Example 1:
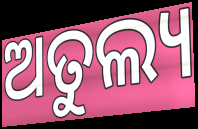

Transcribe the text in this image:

ଅତୁଲ୍ୟ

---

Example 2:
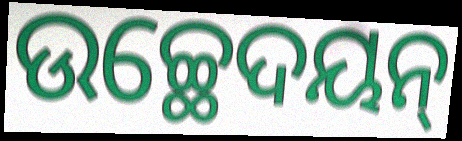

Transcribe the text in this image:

ଉଚ୍ଛେଦୟନ୍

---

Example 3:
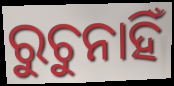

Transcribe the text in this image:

ରୁଚୁନାହିଁ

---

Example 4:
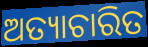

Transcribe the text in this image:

ଅତ୍ୟାଚାରିତ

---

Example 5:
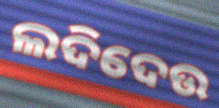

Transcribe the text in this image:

ଲଦିଦେଉ